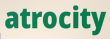
atrocity